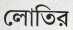
লোতির